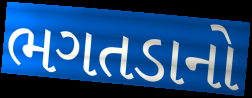
ભગતડાનો